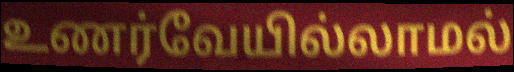
உணர்வேயில்லாமல்